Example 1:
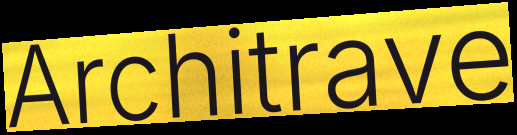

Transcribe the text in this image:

Architrave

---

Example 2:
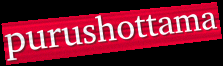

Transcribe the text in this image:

purushottama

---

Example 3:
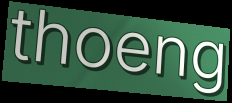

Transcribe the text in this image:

thoeng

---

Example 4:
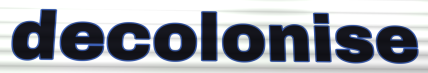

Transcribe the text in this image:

decolonise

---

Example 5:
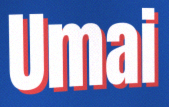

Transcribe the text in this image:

Umai